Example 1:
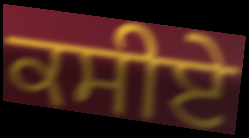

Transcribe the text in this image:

ਕਸੀਏ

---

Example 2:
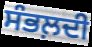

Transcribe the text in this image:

ਸੰਭਲ਼ਦੀ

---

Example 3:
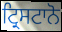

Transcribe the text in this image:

ਟ੍ਰਿਸਟਾਨੋ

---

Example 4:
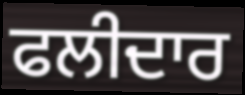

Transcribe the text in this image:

ਫਲੀਦਾਰ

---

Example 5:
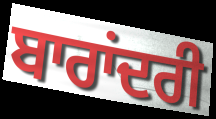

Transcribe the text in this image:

ਬਾਰਾਂਦਰੀ